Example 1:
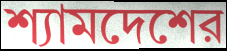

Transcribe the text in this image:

শ্যামদেশের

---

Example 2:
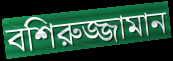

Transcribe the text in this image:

বশিরুজ্জামান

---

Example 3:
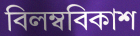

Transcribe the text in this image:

বিলম্ববিকাশ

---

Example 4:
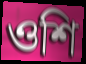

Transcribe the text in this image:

ওশি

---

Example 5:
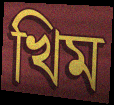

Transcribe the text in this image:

খিম